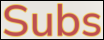
Subs